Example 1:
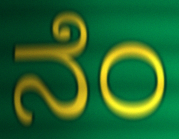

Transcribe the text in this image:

ನೆಂ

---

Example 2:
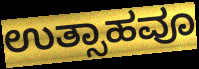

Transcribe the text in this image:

ಉತ್ಸಾಹವೂ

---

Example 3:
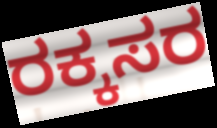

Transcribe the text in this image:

ರಕ್ಕಸರ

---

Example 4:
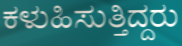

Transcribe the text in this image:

ಕಳುಹಿಸುತ್ತಿದ್ದರು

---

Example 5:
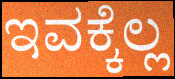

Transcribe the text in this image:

ಇವಕ್ಕೆಲ್ಲ